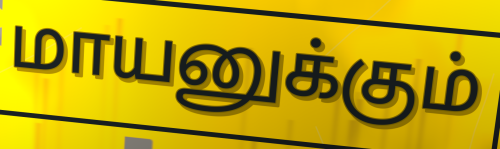
மாயனுக்கும்